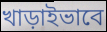
খাড়াইভাবে